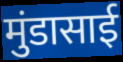
मुंडासाई